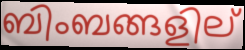
ബിംബങ്ങളില്